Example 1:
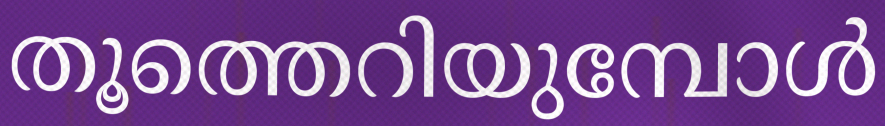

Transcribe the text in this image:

തൂത്തെറിയുമ്പോൾ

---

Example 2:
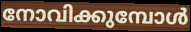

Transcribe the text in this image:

നോവിക്കുമ്പോൾ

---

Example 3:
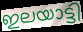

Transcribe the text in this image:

ഇലയാട്ടി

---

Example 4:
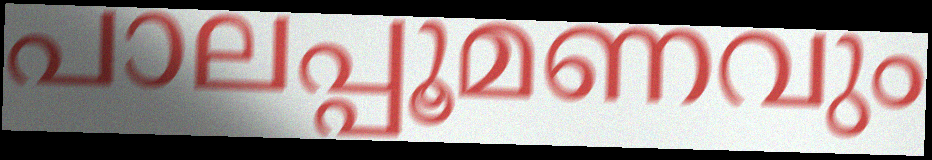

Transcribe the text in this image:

പാലപ്പൂമണവും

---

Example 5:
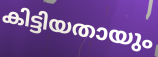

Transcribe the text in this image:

കിട്ടിയതായും